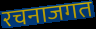
रचनाजगत